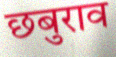
छबुराव